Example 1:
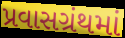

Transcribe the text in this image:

પ્રવાસગ્રંથમાં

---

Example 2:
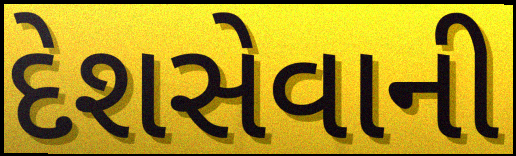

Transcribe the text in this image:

દેશસેવાની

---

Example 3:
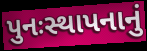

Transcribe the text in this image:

પુનઃસ્થાપનાનું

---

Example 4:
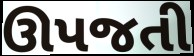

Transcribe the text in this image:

ઊપજતી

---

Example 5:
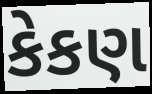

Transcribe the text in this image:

કેકણ